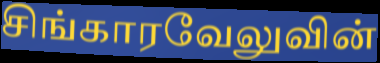
சிங்காரவேலுவின்